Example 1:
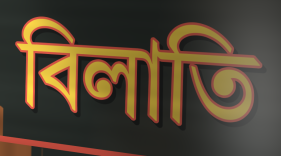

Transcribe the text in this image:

বিলাতি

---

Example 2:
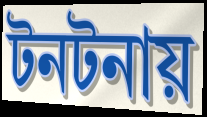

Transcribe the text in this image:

টনটনায়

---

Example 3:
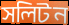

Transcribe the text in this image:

সলিটন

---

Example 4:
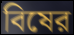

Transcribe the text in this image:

বিষের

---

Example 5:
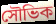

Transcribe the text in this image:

সৌভিক